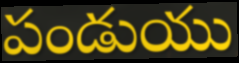
పండుయు